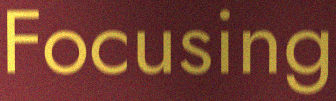
Focusing